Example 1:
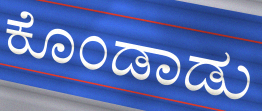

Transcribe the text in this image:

ಕೊಂಡಾಡು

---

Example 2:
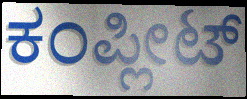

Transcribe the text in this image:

ಕಂಪ್ಲೀಟ್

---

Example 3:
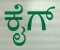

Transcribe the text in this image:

ಕೈಗ್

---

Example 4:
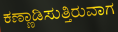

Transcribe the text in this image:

ಕಣ್ಣಾಡಿಸುತ್ತಿರುವಾಗ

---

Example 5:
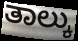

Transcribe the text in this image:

ತಾಲ್ಕು